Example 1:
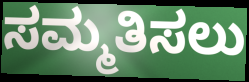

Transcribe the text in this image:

ಸಮ್ಮತಿಸಲು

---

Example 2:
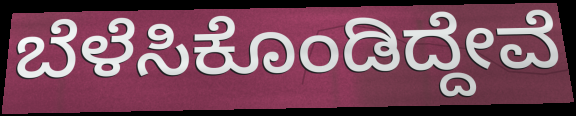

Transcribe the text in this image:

ಬೆಳೆಸಿಕೊಂಡಿದ್ದೇವೆ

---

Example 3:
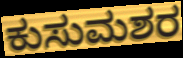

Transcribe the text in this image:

ಕುಸುಮಶರ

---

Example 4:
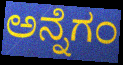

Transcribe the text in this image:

ಅನ್ನೆಗಂ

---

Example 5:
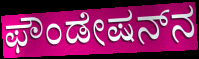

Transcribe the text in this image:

ಫೌಂಡೇಷನ್‌ನ